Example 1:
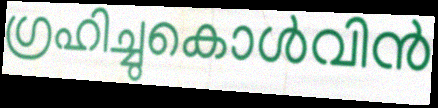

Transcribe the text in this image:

ഗ്രഹിച്ചുകൊൾവിൻ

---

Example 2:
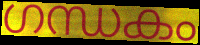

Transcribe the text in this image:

ഗന്ധകം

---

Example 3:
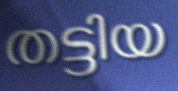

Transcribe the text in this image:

തട്ടിയ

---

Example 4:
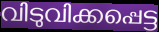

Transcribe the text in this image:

വിടുവിക്കപ്പെട്ട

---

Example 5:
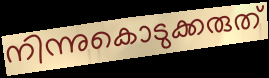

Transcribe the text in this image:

നിന്നുകൊടുക്കരുത്